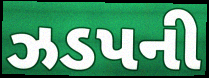
ઝડપની